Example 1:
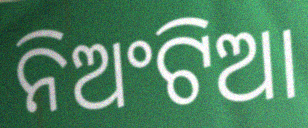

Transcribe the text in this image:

ନିଅଂଟିଆ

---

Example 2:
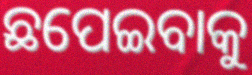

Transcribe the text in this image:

ଛପେଇବାକୁ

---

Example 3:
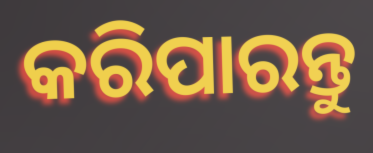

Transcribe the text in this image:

କରିପାରନ୍ତୁ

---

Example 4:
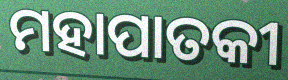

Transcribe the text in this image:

ମହାପାତକୀ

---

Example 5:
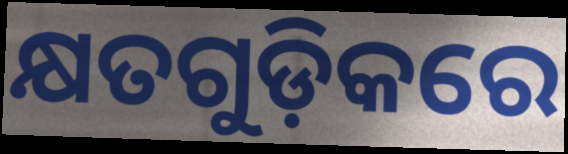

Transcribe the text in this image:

କ୍ଷତଗୁଡ଼ିକରେ